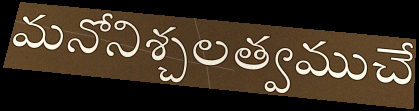
మనోనిశ్చలత్వముచే